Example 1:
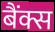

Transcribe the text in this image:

बैंक्स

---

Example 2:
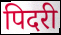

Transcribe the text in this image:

पिदरी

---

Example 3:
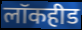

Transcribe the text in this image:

लॉकहीड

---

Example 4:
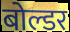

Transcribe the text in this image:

बोल्डर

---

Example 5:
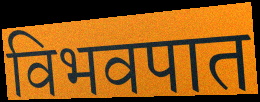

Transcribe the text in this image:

विभवपात